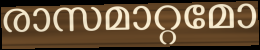
രാസമാറ്റമോ